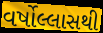
વર્ષોલ્લાસથી